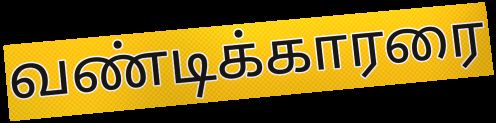
வண்டிக்காரரை